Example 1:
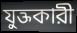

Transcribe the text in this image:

যুক্তকারী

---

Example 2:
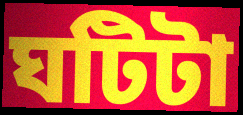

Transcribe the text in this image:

ঘটিটা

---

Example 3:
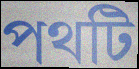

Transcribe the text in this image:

পথটি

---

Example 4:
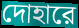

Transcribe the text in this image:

দোহারে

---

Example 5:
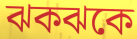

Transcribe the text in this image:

ঝকঝকে